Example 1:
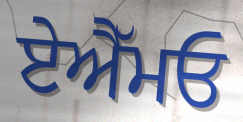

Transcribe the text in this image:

ਏਐੱਮਓ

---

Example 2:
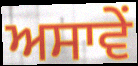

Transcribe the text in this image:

ਅਸਾਵੇਂ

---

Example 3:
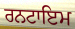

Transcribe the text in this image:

ਰਨਟਾਇਮ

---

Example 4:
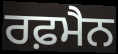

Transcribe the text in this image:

ਰਫ਼ਮੈਨ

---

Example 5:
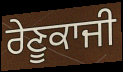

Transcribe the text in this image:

ਰੇਣੂਕਾਜੀ